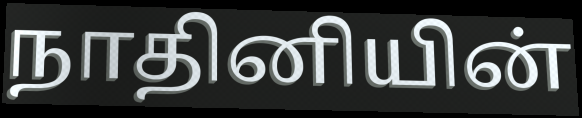
நாதினியின்